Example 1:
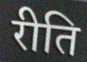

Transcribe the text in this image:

रीति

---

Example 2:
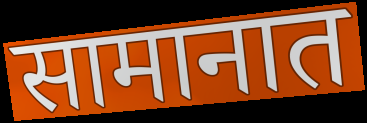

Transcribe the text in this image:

सामानात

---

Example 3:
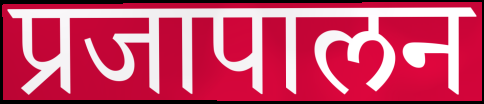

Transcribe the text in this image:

प्रजापालन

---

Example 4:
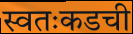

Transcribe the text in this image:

स्वतःकडची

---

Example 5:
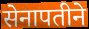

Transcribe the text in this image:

सेनापतीने